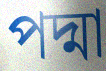
পদ্মা